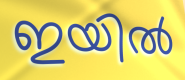
ഇയിൽ